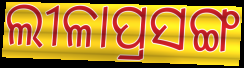
ଲୀଳାପ୍ରସଙ୍ଗ